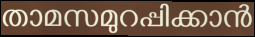
താമസമുറപ്പിക്കാൻ